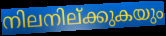
നിലനില്ക്കുകയും